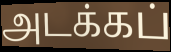
அடக்கப்